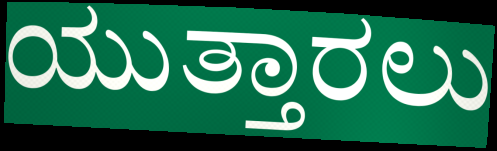
ಯುತ್ತಾರಲು